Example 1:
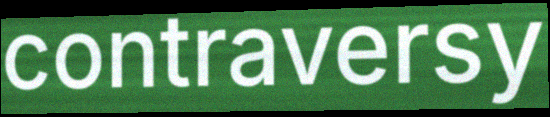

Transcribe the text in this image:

contraversy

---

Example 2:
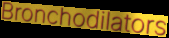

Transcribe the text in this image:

Bronchodilators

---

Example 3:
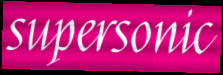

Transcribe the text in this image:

supersonic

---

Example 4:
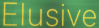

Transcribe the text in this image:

Elusive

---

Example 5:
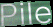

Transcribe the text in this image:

Pile